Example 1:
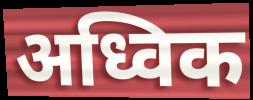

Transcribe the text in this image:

अध्विक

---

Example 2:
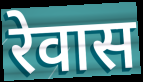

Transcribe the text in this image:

रेवास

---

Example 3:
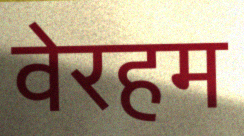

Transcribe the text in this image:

वेरहम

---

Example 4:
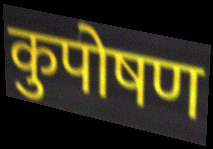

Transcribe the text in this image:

कुपोषण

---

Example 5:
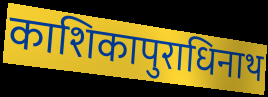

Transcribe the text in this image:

काशिकापुराधिनाथ